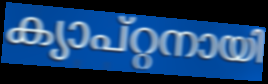
ക്യാപ്റ്റനായി